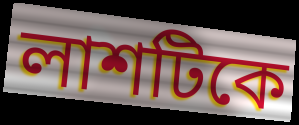
লাশটিকে